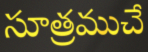
సూత్రముచే